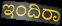
ಇಂದಿರಾ